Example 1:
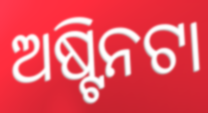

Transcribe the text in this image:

ଅଷ୍ଟିନଟା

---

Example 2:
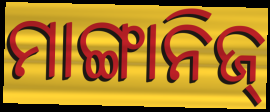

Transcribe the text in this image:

ମାଙ୍ଗାନିଜ୍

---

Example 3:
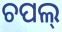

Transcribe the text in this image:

ଚପଲ୍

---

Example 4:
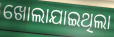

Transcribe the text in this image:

ଖୋଲାଯାଇଥିଲା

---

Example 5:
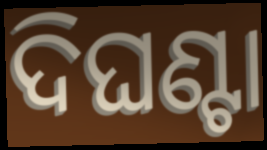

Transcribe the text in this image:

ଦିଘଣ୍ଟା